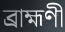
ব্ৰাহ্মণী